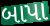
બાપા